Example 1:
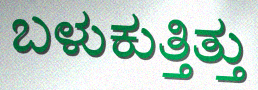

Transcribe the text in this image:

ಬಳುಕುತ್ತಿತ್ತು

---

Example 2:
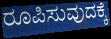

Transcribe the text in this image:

ರೂಪಿಸುವುದಕ್ಕೆ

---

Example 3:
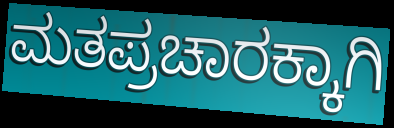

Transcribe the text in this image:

ಮತಪ್ರಚಾರಕ್ಕಾಗಿ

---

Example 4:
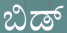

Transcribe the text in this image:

ಬಿಡ್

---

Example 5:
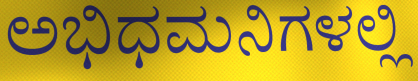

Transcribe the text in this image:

ಅಭಿಧಮನಿಗಳಲ್ಲಿ